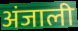
अंजाली